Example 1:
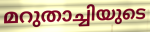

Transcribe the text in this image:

മറുതാച്ചിയുടെ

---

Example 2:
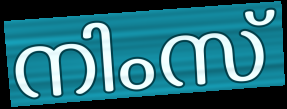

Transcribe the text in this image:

നിംസ്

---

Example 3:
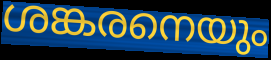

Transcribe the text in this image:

ശങ്കരനെയും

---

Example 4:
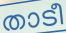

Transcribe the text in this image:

താടീ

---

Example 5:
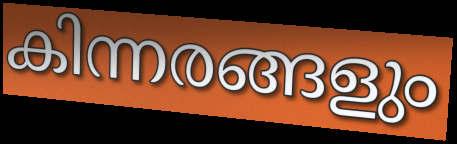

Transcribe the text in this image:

കിന്നരങ്ങളും